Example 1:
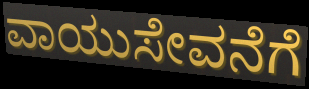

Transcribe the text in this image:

ವಾಯುಸೇವನೆಗೆ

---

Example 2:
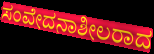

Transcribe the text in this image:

ಸಂವೇದನಾಶೀಲರಾದ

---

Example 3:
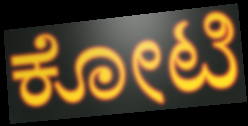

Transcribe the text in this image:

ಕೋಟಿ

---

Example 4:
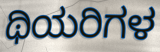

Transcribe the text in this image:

ಥಿಯರಿಗಳ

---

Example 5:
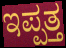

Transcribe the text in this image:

ಇಪ್ಪತ್ತ